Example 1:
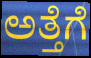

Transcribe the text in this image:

ಅತ್ತೆಗೆ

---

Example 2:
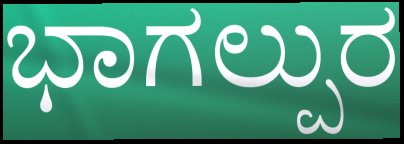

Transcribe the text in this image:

ಭಾಗಲ್ಪುರ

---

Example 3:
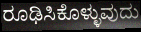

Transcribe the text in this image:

ರೂಢಿಸಿಕೊಳ್ಳುವುದು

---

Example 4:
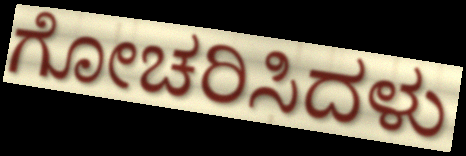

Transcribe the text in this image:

ಗೋಚರಿಸಿದಳು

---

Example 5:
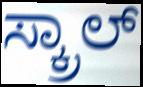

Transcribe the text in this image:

ಸ್ಕ್ರಾಲ್